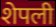
शेपली